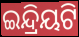
ଇନ୍ଦ୍ରିୟଟି